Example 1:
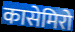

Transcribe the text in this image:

कासेमिरो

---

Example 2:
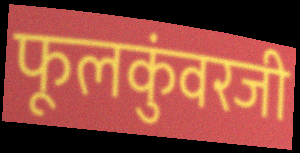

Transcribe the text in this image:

फूलकुंवरजी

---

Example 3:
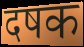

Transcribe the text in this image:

दषक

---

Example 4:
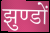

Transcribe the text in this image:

झुण्डों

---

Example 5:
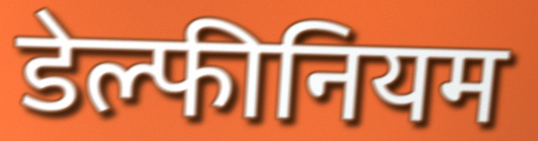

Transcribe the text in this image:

डेल्फीनियम